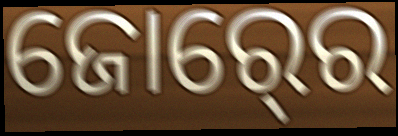
ଜୋର୍‍ରେ